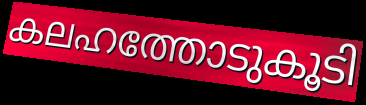
കലഹത്തോടുകൂടി